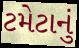
ટમેટાનું